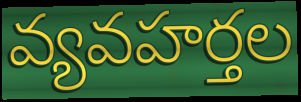
వ్యవహర్తల